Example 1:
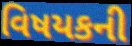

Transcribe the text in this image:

વિષયકની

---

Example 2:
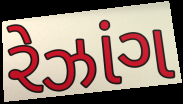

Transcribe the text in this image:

રેઝાંગ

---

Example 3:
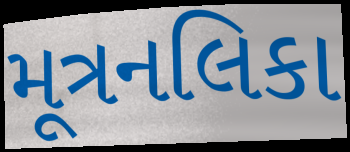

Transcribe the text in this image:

મૂત્રનલિકા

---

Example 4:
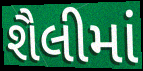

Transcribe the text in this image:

શૈલીમાં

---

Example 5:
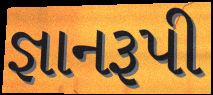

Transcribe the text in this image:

જ્ઞાનરૂપી